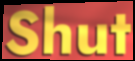
Shut